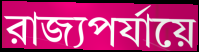
রাজ্যপর্যায়ে